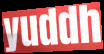
yuddh